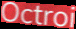
Octroi